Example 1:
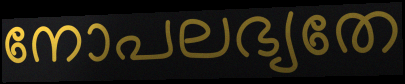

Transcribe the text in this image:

നോപലഭ്യതേ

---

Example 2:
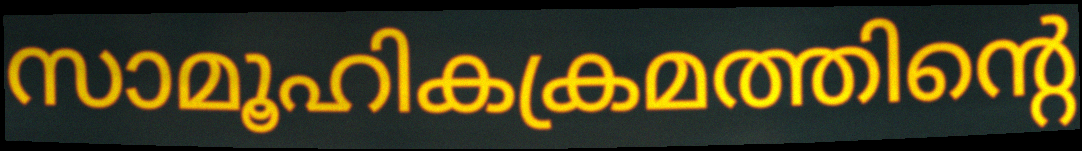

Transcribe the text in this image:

സാമൂഹികക്രമത്തിന്റെ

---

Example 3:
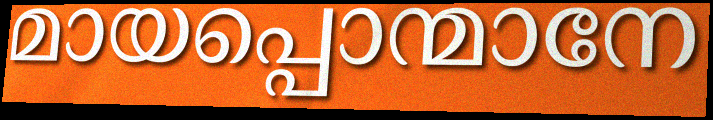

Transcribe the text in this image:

മായപ്പൊന്മാനേ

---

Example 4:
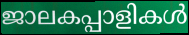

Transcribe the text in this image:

ജാലകപ്പാളികൾ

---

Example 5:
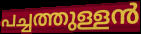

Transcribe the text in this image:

പച്ചത്തുള്ളൻ